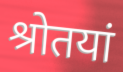
श्रोतयां